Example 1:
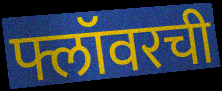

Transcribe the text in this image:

फ्लॉवरची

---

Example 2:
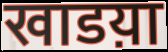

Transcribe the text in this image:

खाडय़ा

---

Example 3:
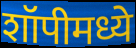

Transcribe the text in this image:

शॉपीमध्ये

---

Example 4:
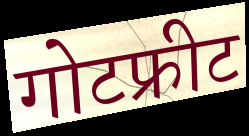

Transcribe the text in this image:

गोटफ्रीट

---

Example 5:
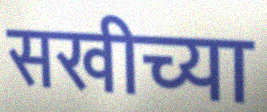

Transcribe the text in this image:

सखीच्या